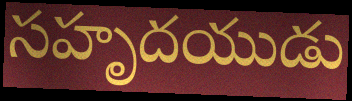
సహృదయుడు